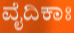
ವೈದಿಕಾಃ